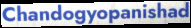
Chandogyopanishad